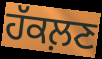
ਹੱਕਲ਼ਣ